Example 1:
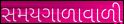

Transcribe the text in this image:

સમયગાળાવાળી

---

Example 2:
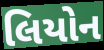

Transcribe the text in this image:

લિયોન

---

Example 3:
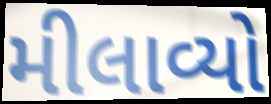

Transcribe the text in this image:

મીલાવ્યો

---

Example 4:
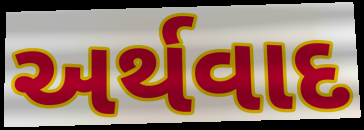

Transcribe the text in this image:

અર્થવાદ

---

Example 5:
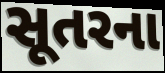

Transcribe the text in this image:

સૂતરના